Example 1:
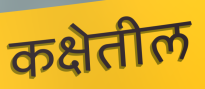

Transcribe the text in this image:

कक्षेतील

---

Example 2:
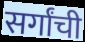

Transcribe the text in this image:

सर्गांची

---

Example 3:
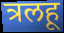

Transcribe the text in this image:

त्रलहू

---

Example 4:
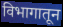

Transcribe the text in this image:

विभागातून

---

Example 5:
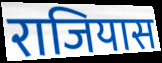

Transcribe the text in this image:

राजियास